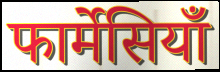
फार्मेसियाँ